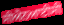
ਸੀਐਨਆਈਸੀ